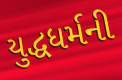
યુદ્ધધર્મની